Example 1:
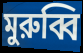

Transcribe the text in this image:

মুরুব্বি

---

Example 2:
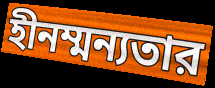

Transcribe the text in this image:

হীনম্মন্যতার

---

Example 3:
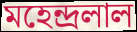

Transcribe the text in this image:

মহেন্দ্রলাল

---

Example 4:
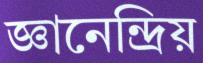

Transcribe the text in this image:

জ্ঞানেন্দ্রিয়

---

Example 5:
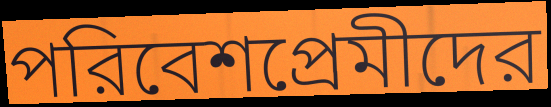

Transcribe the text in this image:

পরিবেশপ্রেমীদের